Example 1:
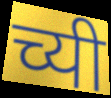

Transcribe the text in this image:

च्यी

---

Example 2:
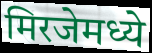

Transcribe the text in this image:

मिरजेमध्ये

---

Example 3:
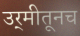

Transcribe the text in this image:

उर्मीतूनच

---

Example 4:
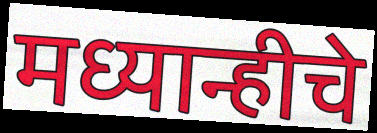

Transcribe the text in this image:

मध्यान्हीचे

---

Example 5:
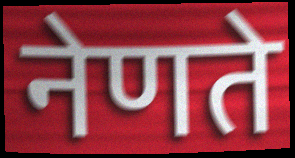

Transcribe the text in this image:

नेणते